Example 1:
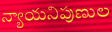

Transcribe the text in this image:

న్యాయనిపుణుల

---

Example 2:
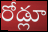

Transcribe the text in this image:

రోడ్లూ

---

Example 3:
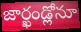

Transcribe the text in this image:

జార్ఖండ్లోనూ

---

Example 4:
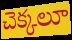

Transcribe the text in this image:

చెక్కలూ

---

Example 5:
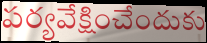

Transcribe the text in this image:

పర్యవేక్షించేందుకు